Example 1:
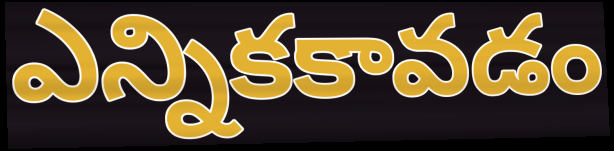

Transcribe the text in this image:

ఎన్నికకావడం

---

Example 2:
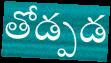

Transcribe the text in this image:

తోడ్పడ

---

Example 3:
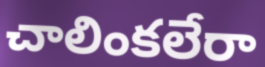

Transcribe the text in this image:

చాలింకలేరా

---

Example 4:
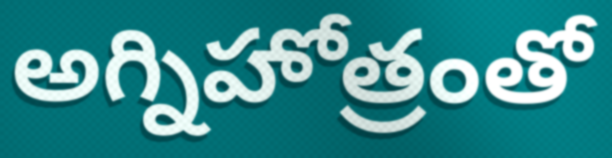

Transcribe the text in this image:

అగ్నిహోత్రంతో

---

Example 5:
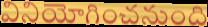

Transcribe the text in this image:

వినియోగించనుంది